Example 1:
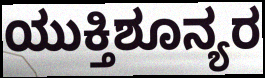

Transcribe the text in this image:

ಯುಕ್ತಿಶೂನ್ಯರ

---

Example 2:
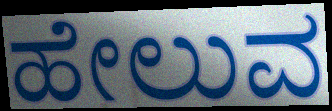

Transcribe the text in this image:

ಹೇಲುವ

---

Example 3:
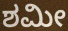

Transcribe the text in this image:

ಶಮೀ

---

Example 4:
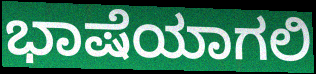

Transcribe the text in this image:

ಭಾಷೆಯಾಗಲಿ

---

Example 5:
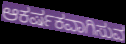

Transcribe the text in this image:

ಆಕರ್ಷಕವಾಗಿಸುವ